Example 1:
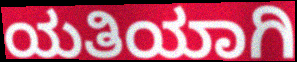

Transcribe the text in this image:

ಯತಿಯಾಗಿ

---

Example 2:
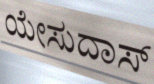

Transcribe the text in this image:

ಯೇಸುದಾಸ್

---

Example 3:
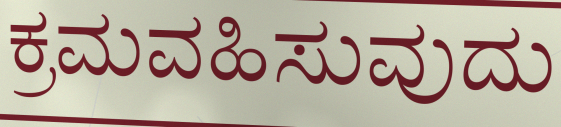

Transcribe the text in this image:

ಕ್ರಮವಹಿಸುವುದು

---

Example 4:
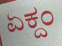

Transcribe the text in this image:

ಏಕ್ದಂ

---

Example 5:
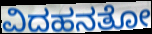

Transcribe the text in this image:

ವಿದಹನತೋ